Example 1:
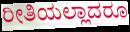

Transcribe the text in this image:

ರೀತಿಯಲ್ಲಾದರೂ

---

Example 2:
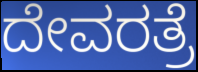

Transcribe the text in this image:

ದೇವರತ್ರೆ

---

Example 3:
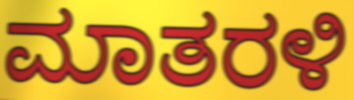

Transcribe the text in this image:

ಮಾತರಳಿ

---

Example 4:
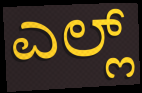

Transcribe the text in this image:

ಎಲ್ಲ್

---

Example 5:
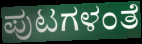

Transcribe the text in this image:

ಪುಟಗಳಂತೆ